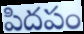
పిదపం